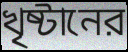
খৃষ্টানের